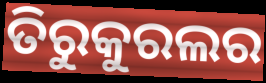
ତିରୁକୁରଲର